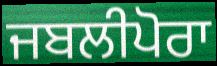
ਜਬਲੀਪੋਰਾ